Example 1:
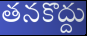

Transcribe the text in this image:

తనకొద్దు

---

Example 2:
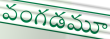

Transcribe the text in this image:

వంగడమూ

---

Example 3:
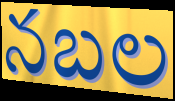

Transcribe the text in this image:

నబల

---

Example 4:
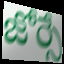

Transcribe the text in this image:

జోర్సే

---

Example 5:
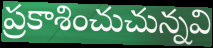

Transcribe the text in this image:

ప్రకాశించుచున్నవి